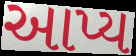
આપ્ય